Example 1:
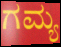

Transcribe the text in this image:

ಗಮ್ಯ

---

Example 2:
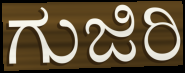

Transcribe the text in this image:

ಗುಜಿರಿ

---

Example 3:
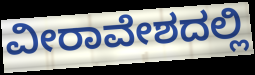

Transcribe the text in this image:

ವೀರಾವೇಶದಲ್ಲಿ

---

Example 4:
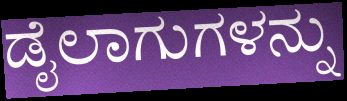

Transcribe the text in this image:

ಡೈಲಾಗುಗಳನ್ನು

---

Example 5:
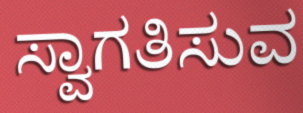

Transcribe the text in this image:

ಸ್ವಾಗತಿಸುವ